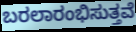
ಬರಲಾರಂಭಿಸುತ್ತವೆ